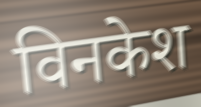
विनकेश